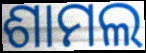
ଶାମଲ